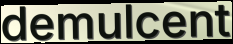
demulcent